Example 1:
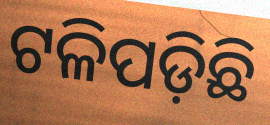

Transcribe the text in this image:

ଟଳିପଡ଼ିଛି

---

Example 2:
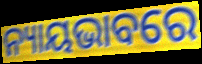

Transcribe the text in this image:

ନ୍ୟାୟଭାବରେ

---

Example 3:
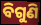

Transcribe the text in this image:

ବିଗୁଣି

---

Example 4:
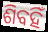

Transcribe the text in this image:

ଶିବହିଁ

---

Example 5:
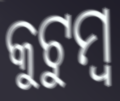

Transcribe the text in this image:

କୁଟୁମ୍ଵ